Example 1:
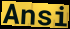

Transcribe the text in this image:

Ansi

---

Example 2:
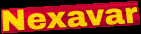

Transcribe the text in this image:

Nexavar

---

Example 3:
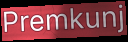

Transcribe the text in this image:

Premkunj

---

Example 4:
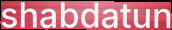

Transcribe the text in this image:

shabdatun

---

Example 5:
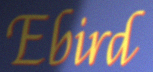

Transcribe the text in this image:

Ebird